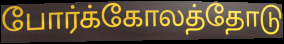
போர்க்கோலத்தோடு